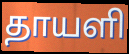
தாயளி